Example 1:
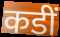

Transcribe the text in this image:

कडीं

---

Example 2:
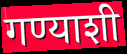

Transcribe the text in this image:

गण्याशी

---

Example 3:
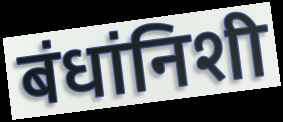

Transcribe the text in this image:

बंधांनिशी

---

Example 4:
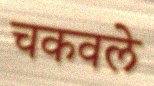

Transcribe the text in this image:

चकवले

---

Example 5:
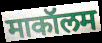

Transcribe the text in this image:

माकॉलम